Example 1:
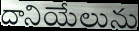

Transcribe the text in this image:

దానియేలును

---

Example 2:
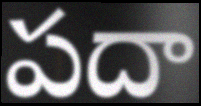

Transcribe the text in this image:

పదా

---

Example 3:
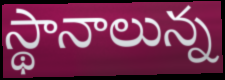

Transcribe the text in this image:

స్థానాలున్న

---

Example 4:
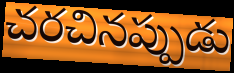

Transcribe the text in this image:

చరచినప్పుడు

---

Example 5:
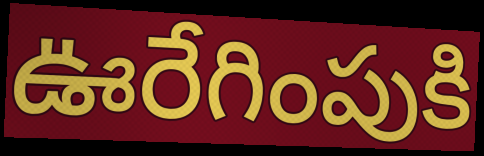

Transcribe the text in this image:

ఊరేగింపుకి